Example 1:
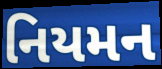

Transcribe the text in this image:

નિયમન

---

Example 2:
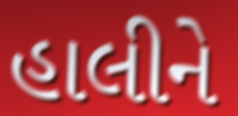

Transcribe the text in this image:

હાલીને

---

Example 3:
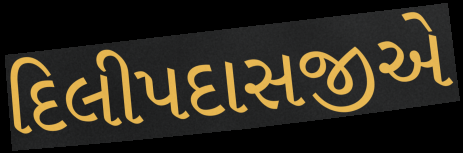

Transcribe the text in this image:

દિલીપદાસજીએ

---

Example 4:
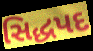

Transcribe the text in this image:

સિદ્ધપદ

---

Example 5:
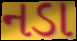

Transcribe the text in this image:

નડા